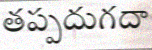
తప్పదుగదా